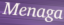
Menaga